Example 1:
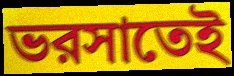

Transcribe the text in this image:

ভরসাতেই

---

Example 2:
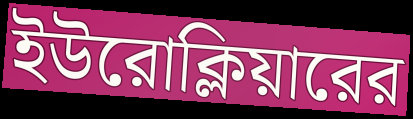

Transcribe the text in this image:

ইউরোক্লিয়ারের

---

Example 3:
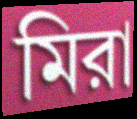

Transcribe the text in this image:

মিরা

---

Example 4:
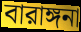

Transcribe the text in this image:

বারাঙ্গনা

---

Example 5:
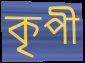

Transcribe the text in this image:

কৃপী